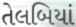
તેલબિયાં